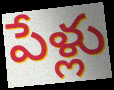
పేళ్లు